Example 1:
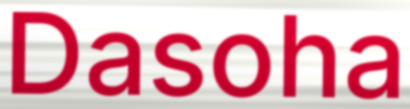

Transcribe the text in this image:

Dasoha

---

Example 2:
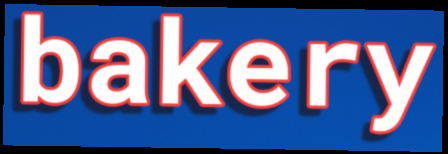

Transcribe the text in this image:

bakery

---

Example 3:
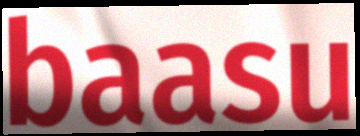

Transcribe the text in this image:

baasu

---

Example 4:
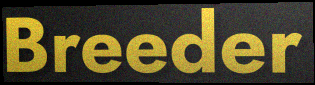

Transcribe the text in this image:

Breeder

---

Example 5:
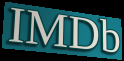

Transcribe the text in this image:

IMDb